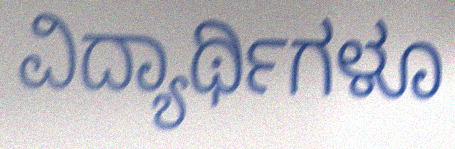
ವಿದ್ಯಾರ್ಥಿಗಳೂ